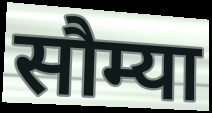
सौम्या